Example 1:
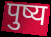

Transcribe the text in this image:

पुष्य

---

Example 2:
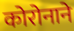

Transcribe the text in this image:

कोरोनाने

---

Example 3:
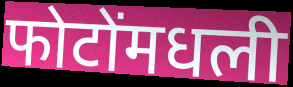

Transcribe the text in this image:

फोटोंमधली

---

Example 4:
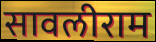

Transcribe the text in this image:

सावलीराम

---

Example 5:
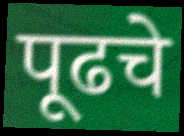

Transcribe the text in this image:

पूढचे